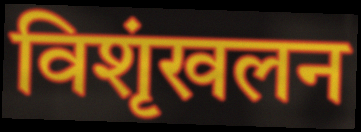
विशृंखलन